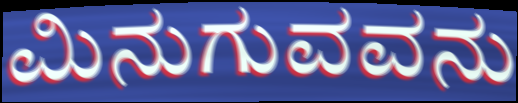
ಮಿನುಗುವವನು